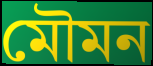
মৌমন